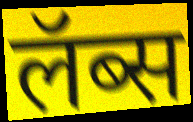
लॅब्स